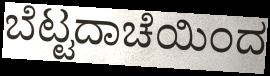
ಬೆಟ್ಟದಾಚೆಯಿಂದ